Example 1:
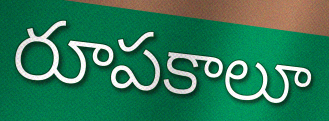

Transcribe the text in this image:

రూపకాలూ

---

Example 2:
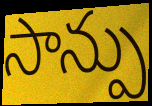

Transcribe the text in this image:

సాన్పు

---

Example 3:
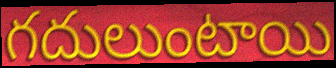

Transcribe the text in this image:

గదులుంటాయి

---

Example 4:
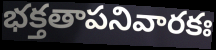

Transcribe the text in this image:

భక్తతాపనివారకః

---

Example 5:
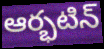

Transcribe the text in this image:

ఆర్భటిన్